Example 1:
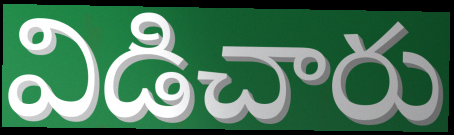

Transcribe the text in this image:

విడిచారు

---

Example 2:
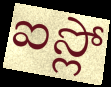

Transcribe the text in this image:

ఐస్లో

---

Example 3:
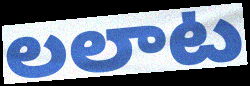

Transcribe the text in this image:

లలాట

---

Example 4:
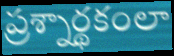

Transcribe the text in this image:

ప్రశ్నార్థకంలా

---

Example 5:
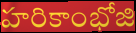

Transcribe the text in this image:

హరికాంభోజి